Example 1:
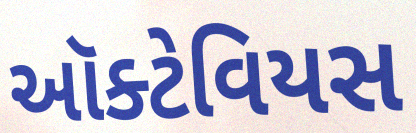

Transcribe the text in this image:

ઑક્ટેવિયસ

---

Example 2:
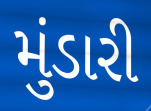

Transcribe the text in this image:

મુંડારી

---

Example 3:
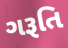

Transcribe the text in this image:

ગરૂતિ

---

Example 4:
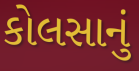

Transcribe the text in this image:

કોલસાનું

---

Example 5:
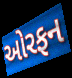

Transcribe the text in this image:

ઓરફન